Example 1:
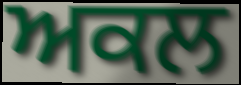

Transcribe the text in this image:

ਅਕਲ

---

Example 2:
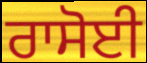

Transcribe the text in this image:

ਰਾਸੋਈ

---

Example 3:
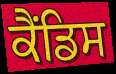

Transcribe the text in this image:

ਕੈਂਡਿਸ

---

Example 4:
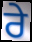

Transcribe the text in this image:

ਰੇ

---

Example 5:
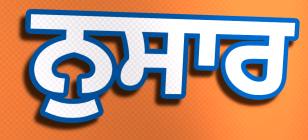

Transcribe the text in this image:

ਨੁਸਾਰ